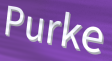
Purke